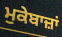
ਮੁਕੇਬਾਜ਼ਾਂ